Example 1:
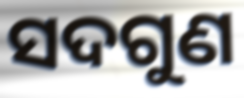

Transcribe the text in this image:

ସଦଗୁଣ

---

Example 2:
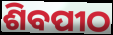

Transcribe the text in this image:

ଶିବପୀଠ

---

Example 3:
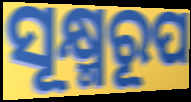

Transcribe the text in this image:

ସୂକ୍ଷ୍ମରୂପ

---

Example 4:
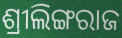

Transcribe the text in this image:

ଶ୍ରୀଲିଙ୍ଗରାଜ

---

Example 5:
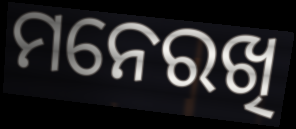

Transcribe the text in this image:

ମନେରଖି